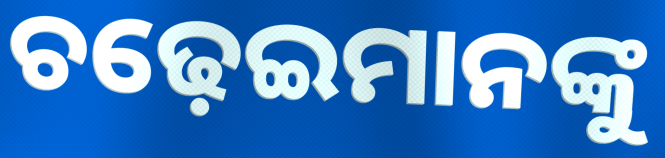
ଚଢ଼େଇମାନଙ୍କୁ